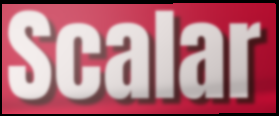
Scalar